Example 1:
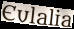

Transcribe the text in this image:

Eulalia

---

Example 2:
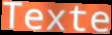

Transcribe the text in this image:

Texte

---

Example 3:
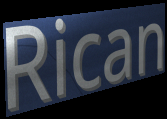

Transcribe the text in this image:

Rican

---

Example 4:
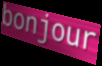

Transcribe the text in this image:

bonjour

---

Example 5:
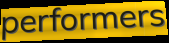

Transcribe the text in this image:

performers